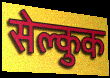
सेल्कुक